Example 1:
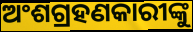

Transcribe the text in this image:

ଅଂଶଗ୍ରହଣକାରୀଙ୍କୁ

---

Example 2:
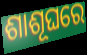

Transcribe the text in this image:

ଶାଶୂଘରେ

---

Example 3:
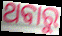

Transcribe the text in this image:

ଥବାରୁ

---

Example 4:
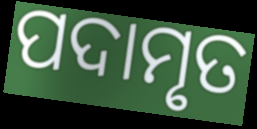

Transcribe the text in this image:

ପଦାମୃତ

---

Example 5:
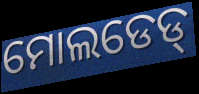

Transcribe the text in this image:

ମୋଲଡେଡ୍